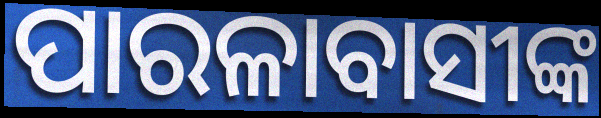
ପାରଳାବାସୀଙ୍କ